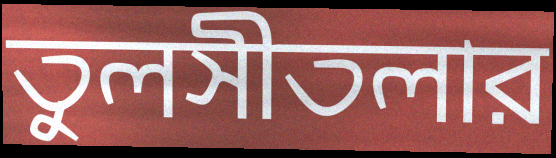
তুলসীতলার